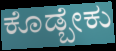
ಕೊಡ್ಬೇಕು